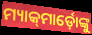
ମ୍ୟାକ୍‍ମାର୍ଡ଼ୋଙ୍କୁ